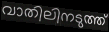
വാതിലിനടുത്ത്